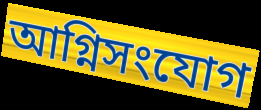
আগ্নিসংযোগ